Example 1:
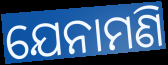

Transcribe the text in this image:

ଯେନାମଣି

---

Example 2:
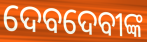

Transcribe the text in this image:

ଦେବଦେବୀଙ୍କ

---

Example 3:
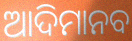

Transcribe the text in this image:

ଆଦିମାନବ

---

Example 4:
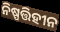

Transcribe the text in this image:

ନିଷ୍ପତ୍ତିହୀନ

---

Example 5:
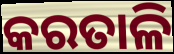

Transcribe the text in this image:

କରତାଳି